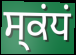
ਸ੍ਕਂਧਂ